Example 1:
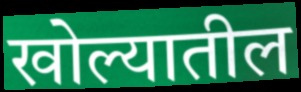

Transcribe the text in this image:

खोल्यातील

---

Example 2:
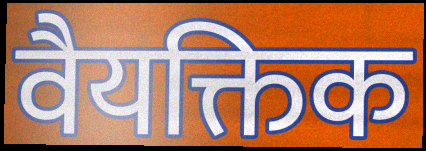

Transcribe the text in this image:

वैयक्तिक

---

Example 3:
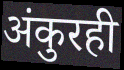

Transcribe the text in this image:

अंकुरही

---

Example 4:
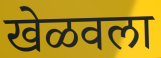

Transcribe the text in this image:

खेळवला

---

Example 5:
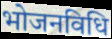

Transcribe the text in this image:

भोजनविधि